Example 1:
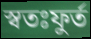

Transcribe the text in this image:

স্বতঃফুর্ত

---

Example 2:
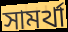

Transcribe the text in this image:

সামর্থা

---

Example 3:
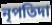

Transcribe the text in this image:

নৃপতিদা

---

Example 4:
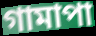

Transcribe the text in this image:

গামাপা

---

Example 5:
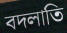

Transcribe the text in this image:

বদলাতি